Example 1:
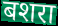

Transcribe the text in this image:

बशरा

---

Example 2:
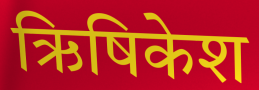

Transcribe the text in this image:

ऋिषिकेश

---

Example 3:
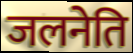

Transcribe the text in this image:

जलनेति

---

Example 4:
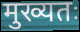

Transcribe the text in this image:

मुख्यतः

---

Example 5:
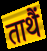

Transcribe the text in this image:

ताथैं